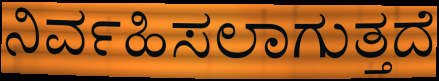
ನಿರ್ವಹಿಸಲಾಗುತ್ತದೆ